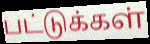
பட்டுக்கள்